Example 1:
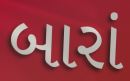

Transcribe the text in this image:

બારાં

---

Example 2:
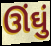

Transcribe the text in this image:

ઊંઘું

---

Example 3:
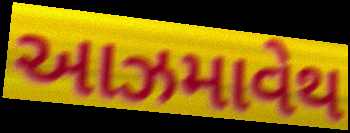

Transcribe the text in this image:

આઝમાવેથ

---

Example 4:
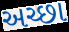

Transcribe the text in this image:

અચ્છા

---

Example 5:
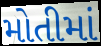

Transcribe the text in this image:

મોતીમાં